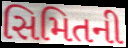
સિમિતની